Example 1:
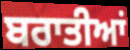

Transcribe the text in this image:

ਬਰਾਤੀਆਂ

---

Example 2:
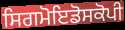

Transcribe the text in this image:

ਸਿਗਮੋਇਡੋਸਕੋਪੀ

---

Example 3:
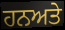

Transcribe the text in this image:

ਹਨਅਤੇ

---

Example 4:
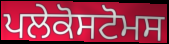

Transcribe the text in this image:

ਪਲੇਕੋਸਟੋਮਸ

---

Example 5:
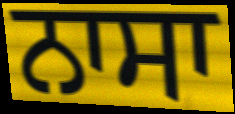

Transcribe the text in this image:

ਨਾਸਾ